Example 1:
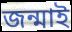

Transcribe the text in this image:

জন্মাই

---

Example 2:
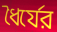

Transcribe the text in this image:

ধৈর্যের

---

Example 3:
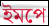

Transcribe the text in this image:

ইমপে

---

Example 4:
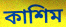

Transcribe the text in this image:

কাশিম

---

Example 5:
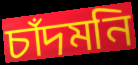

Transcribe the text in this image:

চাঁদমনি